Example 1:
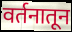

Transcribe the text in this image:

वर्तनातून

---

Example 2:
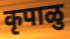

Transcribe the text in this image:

कृपाळु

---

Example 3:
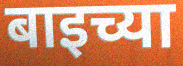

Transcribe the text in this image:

बाइच्या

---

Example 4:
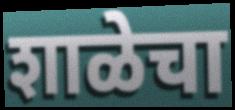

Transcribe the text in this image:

शाळेचा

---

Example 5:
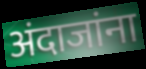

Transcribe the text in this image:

अंदाजांना